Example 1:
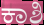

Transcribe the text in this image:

ಕಾಶಿ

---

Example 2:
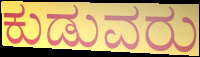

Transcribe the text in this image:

ಕುಡುವರು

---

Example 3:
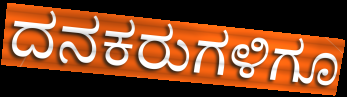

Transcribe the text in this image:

ದನಕರುಗಳಿಗೂ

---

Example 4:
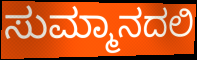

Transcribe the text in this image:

ಸುಮ್ಮಾನದಲಿ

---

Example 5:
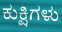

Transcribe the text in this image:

ಕುಕ್ಷಿಗಳು